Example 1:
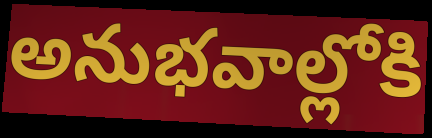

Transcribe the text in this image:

అనుభవాల్లోకి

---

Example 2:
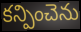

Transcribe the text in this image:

కన్పించెను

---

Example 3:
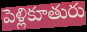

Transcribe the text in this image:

పెళ్లికూతురు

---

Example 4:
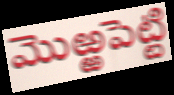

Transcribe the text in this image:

మొఱ్ఱపెట్టి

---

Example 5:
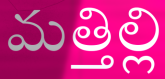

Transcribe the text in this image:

మత్తిల్లి